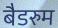
बैडरुम